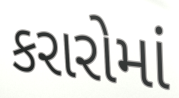
કરારોમાં